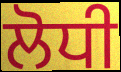
ਲੋਧੀ